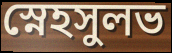
স্নেহসুলভ